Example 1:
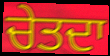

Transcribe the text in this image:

ਚੇਤਦਾ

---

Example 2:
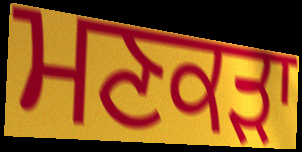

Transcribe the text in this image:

ਮਣਕੜਾ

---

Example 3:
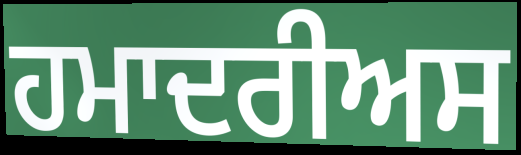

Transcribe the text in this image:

ਹਮਾਦਰੀਅਸ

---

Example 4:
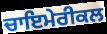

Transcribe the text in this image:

ਚਾਇਮੇਰੀਕਲ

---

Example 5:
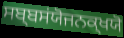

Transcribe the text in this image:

ਸਬ੍ਬਸਂਯੋਜਨਕ੍ਖਯੋ